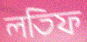
লতিফ